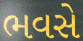
ભવસે